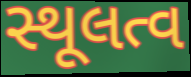
સ્થૂલત્વ